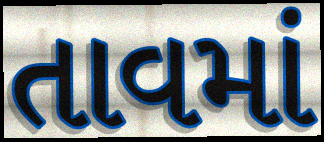
તાવમાં